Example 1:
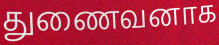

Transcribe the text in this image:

துணைவனாக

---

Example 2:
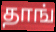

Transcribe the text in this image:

தாங்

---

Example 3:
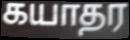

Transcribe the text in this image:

கயாதர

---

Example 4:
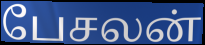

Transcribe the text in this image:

பேசலன்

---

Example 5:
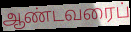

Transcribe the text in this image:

ஆண்டவரைப்